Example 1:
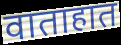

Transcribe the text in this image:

वाताहात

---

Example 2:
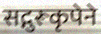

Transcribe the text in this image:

सद्गुरूकृपेने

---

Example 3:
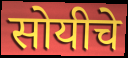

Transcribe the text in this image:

सोयीचे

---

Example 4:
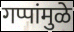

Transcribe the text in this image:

गप्पांमुळे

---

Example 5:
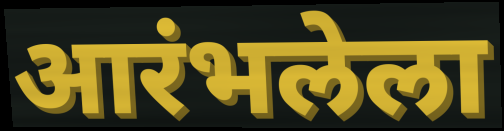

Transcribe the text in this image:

आरंभलेला